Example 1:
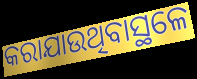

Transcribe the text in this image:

କରାଯାଉଥିବାସ୍ଥଳେ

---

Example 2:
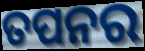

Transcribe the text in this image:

ତପନର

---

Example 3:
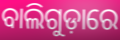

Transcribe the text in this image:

ବାଲିଗୁଡ଼ାରେ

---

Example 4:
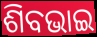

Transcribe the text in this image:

ଶିବଭାଇ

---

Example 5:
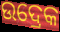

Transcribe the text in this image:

ଉଦ୍ରେକ